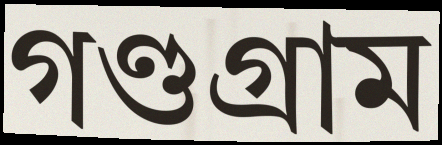
গণ্ডগ্রাম